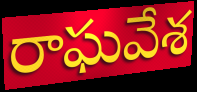
రాఘవేశ